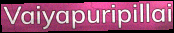
Vaiyapuripillai